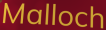
Malloch